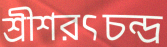
শ্রীশরৎচন্দ্র